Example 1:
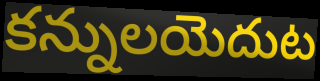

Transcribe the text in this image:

కన్నులయెదుట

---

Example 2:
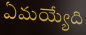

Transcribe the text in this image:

ఏమయ్యేది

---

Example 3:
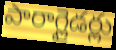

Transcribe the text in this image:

పారాగ్లైడర్లు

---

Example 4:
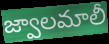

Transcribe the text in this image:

జ్వాలమాలీ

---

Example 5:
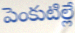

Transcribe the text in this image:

పెంకుటిల్లే